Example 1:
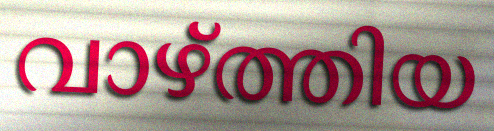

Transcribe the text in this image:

വാഴ്ത്തിയ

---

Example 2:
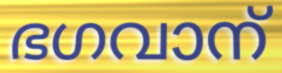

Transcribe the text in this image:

ഭഗവാന്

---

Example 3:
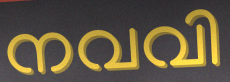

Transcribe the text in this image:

നവവി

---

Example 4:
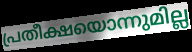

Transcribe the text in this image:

പ്രതീക്ഷയൊന്നുമില്ല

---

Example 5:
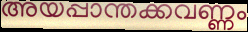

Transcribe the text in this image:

അയപ്പാന്തക്കവണ്ണം